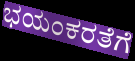
ಭಯಂಕರತೆಗೆ